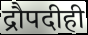
द्रौपदीही